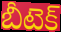
బీటెక్